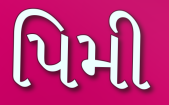
પિમી